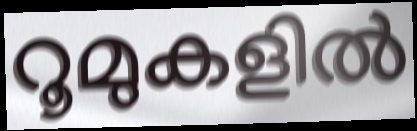
റൂമുകളിൽ